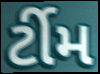
ર્ટીમ